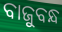
ବାଜୁବନ୍ଧ